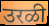
उरळी